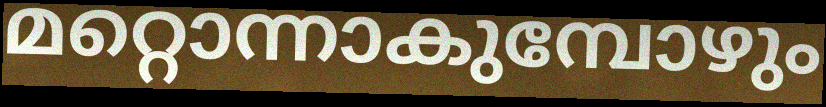
മറ്റൊന്നാകുമ്പോഴും